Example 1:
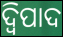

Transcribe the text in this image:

ଦ୍ୱିପାଦ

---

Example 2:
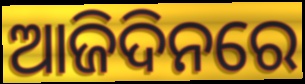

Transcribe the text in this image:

ଆଜିଦିନରେ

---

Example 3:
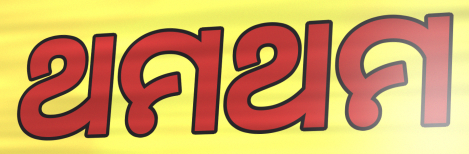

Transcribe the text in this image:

ଥମଥମ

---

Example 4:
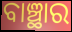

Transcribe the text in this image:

ବାଞ୍ଛାର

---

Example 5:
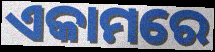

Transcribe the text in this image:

ଏକାମରେ